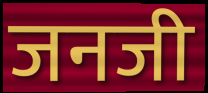
जनजी